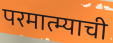
परमात्म्याची